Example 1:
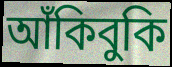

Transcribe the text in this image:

আঁকিবুকি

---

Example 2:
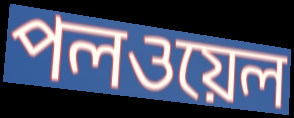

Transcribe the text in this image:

পলওয়েল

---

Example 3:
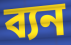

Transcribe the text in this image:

ব্যন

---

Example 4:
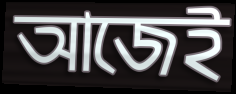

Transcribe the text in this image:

আজেই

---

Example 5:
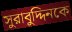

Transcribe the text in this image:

সুরাবুদ্দিনকে